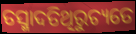
ତସ୍ମାଦତିଥିରୁଚ୍ୟତେ